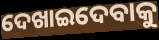
ଦେଖାଇଦେବାକୁ